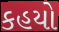
કહયો